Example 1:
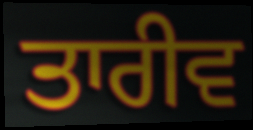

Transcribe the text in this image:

ਤਾਰੀਵ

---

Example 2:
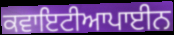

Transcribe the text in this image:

ਕਵਾਇਟੀਆਪਾਈਨ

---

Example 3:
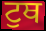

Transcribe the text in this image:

ਟੁਥ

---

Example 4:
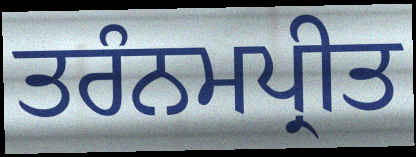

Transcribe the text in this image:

ਤਰੰਨਮਪ੍ਰੀਤ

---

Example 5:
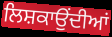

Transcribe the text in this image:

ਲਿਸ਼ਕਾਉਂਦੀਆਂ